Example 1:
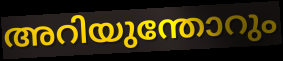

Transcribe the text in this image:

അറിയുന്തോറും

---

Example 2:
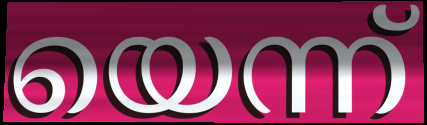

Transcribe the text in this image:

യെന്ന്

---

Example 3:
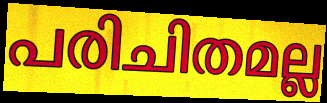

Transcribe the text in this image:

പരിചിതമല്ല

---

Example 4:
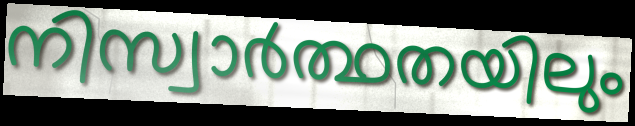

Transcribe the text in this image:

നിസ്വാർത്ഥതയിലും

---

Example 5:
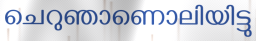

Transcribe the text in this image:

ചെറുഞാണൊലിയിട്ടു